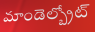
మాండెల్బ్రోట్